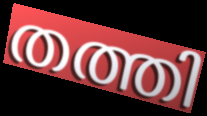
തത്തി